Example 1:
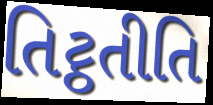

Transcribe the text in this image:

તિટ્ઠતીતિ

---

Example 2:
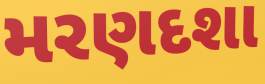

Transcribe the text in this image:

મરણદશા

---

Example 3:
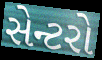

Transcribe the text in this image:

સેન્ટરો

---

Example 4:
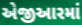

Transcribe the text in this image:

એજીઆરમાં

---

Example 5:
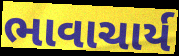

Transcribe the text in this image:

ભાવાચાર્ય